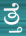
ತ್ತೆ